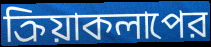
ক্রিয়াকলাপের